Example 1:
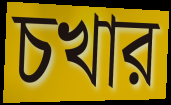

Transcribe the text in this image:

চখার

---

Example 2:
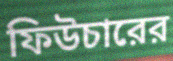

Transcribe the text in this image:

ফিউচারের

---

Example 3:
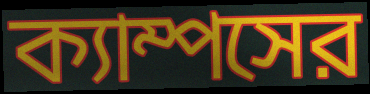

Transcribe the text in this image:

ক্যাম্পসের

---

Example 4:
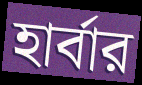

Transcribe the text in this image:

হার্বার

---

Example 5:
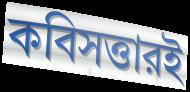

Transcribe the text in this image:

কবিসত্তারই